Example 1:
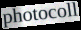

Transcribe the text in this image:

photocoll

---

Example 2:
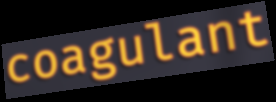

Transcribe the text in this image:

coagulant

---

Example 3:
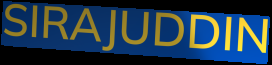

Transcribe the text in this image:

SIRAJUDDIN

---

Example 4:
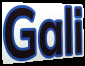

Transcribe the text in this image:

Gali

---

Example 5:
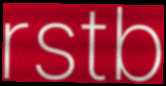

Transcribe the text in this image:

rstb